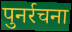
पुनर्रचना